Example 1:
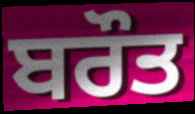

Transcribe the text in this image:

ਬਰੌਤ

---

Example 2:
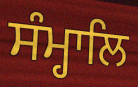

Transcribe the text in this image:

ਸੰਮ੍ਹ੍ਹਾਲਿ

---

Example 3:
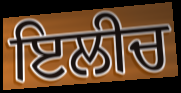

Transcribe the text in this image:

ਇਲੀਚ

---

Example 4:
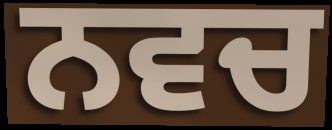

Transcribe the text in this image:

ਨਵਚ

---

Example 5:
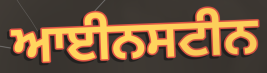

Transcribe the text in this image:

ਆਈਨਸਟੀਨ